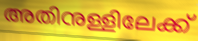
അതിനുള്ളിലേക്ക്